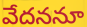
వేదననూ